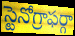
స్టెనోగ్రాఫర్గా